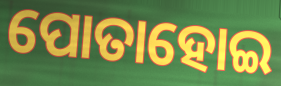
ପୋତାହୋଇ